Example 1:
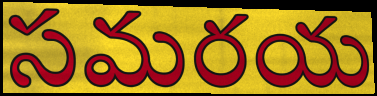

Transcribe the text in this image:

సమరయ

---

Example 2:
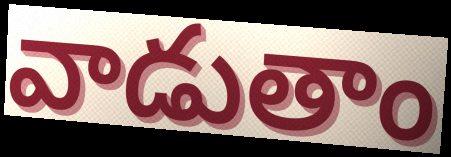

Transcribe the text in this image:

వాడుతాం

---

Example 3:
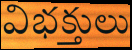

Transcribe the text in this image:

విభక్తులు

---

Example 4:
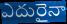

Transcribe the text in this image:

ఎదురైనా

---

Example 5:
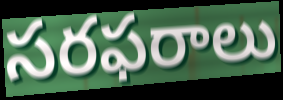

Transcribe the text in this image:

సరఫరాలు